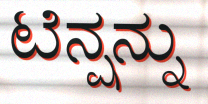
ಟೆನ್ಷನ್ನು